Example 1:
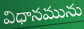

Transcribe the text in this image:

విధానమును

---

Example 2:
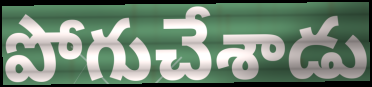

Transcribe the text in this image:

పోగుచేశాడు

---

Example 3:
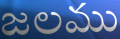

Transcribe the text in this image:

జలము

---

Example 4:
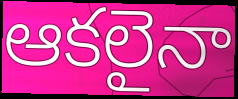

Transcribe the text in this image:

ఆకలైనా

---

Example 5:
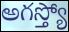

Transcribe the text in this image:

అగస్త్యో